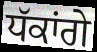
ਧੱਕਾਂਗੇ